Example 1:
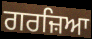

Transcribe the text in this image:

ਗਰਜ਼ਿਆ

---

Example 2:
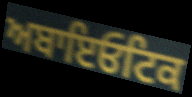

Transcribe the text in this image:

ਅਬਾਇਓਟਿਕ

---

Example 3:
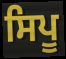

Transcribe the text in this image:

ਸਿਪੂ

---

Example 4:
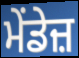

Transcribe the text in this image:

ਮੇਂਡੇਜ਼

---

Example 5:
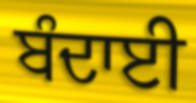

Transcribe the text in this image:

ਬੰਦਾਈ